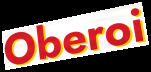
Oberoi